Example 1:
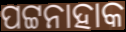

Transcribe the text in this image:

ପଟ୍ଟନାହାକ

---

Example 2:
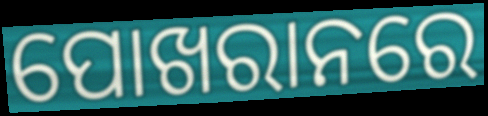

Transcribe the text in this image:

ପୋଖରାନରେ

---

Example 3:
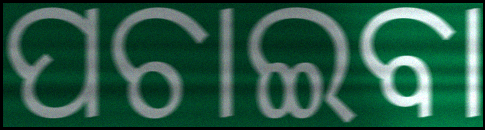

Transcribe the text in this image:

ପଚାଇବା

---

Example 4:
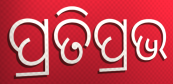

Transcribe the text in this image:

ପ୍ରତିପ୍ରଭ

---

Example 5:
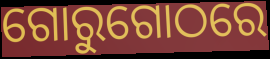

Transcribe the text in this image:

ଗୋରୁଗୋଠରେ